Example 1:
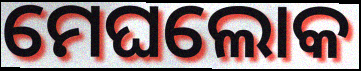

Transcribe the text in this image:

ମେଘଲୋକ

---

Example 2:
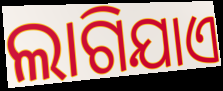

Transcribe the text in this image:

ଲାଗିଯାଏ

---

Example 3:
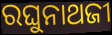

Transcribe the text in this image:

ରଘୁନାଥଜୀ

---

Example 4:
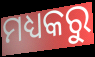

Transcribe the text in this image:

ମଧ୍ୟକରୁ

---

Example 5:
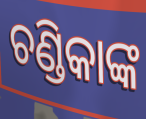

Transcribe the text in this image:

ଚଣ୍ଡିକାଙ୍କ